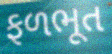
ફળભૂત